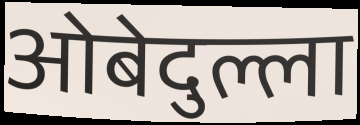
ओबेदुल्ला